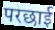
परछाई